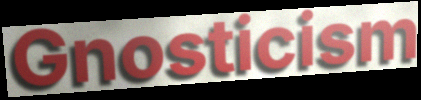
Gnosticism